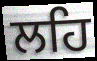
ਲਹਿ